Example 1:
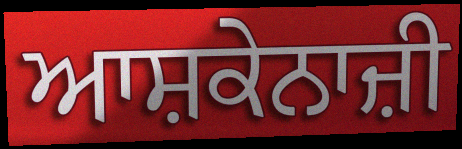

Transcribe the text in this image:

ਆਸ਼ਕੇਨਾਜ਼ੀ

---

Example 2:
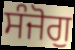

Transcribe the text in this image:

ਸੰਜੋਗੁ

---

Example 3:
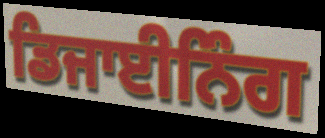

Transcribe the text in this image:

ਡਿਜਾਈਨਿੰਗ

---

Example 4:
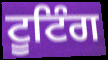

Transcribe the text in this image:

ਟੂਟਿੰਗ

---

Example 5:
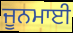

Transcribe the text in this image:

ਜੂਨਮਾਈ